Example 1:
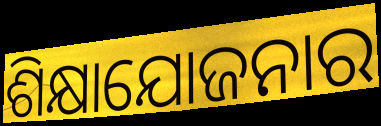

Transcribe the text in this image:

ଶିକ୍ଷାଯୋଜନାର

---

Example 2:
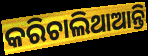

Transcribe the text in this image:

କରିଚାଲିଥାଆନ୍ତି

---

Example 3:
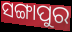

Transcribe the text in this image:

ସଙ୍ଗାପୁର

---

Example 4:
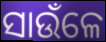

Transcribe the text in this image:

ସାଉଁଳେ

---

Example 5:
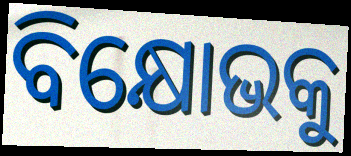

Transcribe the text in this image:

ବିକ୍ଷୋଭକୁ